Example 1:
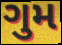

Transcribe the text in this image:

ગુમ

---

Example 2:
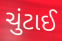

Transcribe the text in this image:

ચુંટાઈ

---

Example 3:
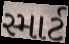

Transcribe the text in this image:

સ્માર્ટ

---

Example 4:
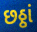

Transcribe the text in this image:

છઠ્ઠાં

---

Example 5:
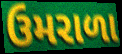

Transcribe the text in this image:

ઉમરાળા